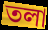
তলা